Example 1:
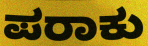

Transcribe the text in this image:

ಪರಾಕು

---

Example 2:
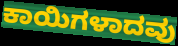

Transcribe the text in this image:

ಕಾಯಿಗಳಾದವು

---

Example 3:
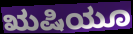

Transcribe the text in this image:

ಋಷಿಯೂ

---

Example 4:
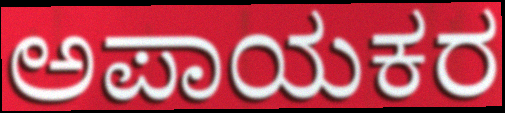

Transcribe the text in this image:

ಅಪಾಯಕರ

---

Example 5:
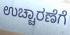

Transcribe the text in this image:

ಉಚ್ಚಾರಣೆಗೆ